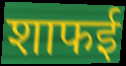
शाफई